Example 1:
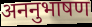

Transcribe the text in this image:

अननुभाषण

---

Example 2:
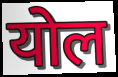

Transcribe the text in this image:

योल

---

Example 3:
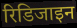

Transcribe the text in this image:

रिडिजाइन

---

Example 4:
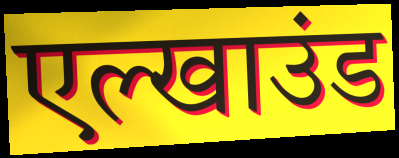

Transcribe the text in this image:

एल्खाउंड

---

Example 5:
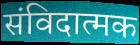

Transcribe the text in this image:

संविदात्मक